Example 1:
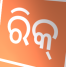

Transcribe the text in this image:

ରିକ୍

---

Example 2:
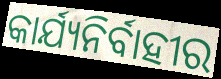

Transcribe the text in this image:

କାର୍ଯ୍ୟନିର୍ବାହୀର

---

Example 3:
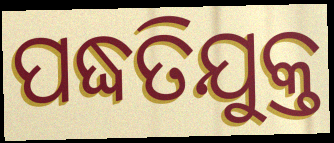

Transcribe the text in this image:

ପଦ୍ଧତିଯୁକ୍ତ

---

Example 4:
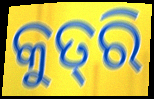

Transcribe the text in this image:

କୁତ୍‌ରି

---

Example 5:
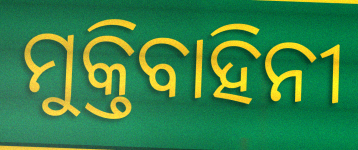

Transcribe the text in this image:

ମୁକ୍ତିବାହିନୀ